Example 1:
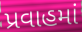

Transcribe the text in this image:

પ્રવાહમાં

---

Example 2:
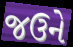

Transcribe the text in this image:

જઉને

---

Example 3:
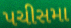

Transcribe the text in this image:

પચીસમા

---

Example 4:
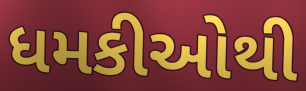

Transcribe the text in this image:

ધમકીઓથી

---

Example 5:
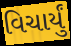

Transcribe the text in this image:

વિચાર્યું